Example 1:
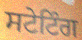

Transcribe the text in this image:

ਸਟੇਟਿੰਗ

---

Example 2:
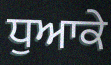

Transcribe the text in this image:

ਧੁਆਕੇ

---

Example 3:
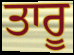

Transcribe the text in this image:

ਤਾਰੂ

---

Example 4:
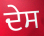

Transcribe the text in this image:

ਦੇਸ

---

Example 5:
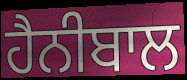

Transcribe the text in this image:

ਹੈਨੀਬਾਲ